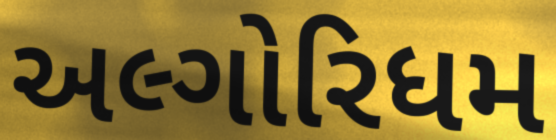
અલ્ગોરિધમ